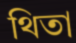
থিতা